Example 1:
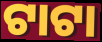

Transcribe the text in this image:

ଟାଟା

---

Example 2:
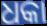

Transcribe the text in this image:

ଧକା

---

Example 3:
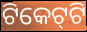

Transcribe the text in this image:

ଟିକେଟ୍‌ଟି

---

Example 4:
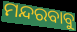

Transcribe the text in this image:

ମନ୍ଦରବାବୁ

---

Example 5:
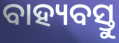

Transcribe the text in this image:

ବାହ୍ୟବସ୍ତୁ